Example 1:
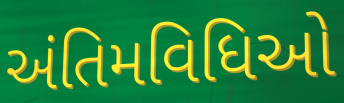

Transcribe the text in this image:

અંતિમવિધિઓ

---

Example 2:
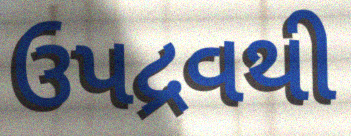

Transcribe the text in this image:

ઉપદ્રવથી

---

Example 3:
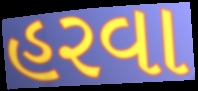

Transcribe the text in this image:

હરવા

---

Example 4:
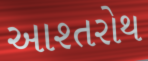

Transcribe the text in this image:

આશ્તરોથ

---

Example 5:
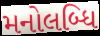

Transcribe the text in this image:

મનોલબ્ધિ